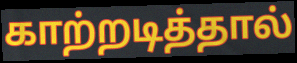
காற்றடித்தால்